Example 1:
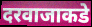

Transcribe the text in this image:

दरवाजाकडे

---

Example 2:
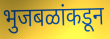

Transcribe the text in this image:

भुजबळांकडून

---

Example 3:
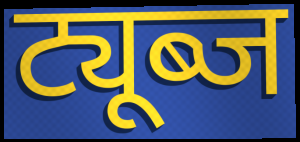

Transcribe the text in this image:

ट्यूब्ज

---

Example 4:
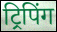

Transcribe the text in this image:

ट्रिपिंग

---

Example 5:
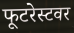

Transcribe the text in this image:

फूटरेस्टवर